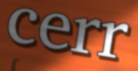
cerr